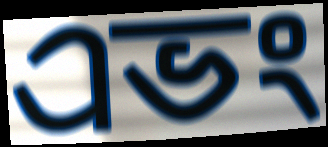
এভং